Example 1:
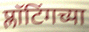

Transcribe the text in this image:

प्लॉटिंगच्या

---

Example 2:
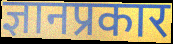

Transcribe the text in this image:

ज्ञानप्रकार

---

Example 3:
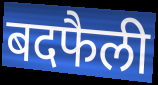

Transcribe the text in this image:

बदफैली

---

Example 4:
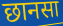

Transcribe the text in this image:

छानसा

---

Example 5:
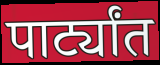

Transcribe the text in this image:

पार्ट्यांत